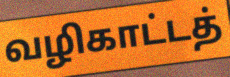
வழிகாட்டத்